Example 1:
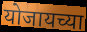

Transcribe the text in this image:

योजायच्या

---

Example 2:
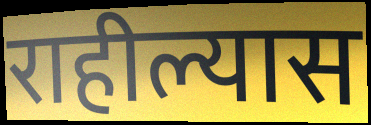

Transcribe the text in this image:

राहील्यास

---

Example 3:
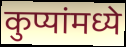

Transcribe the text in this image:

कुप्यांमध्ये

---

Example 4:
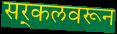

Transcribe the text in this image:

सर्कलवरून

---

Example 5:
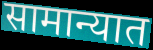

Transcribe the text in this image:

सामान्यात